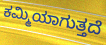
ಕಮ್ಮಿಯಾಗುತ್ತದೆ